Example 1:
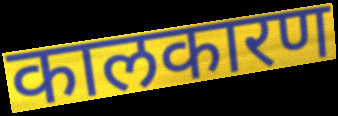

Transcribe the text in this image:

कालकारण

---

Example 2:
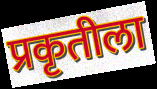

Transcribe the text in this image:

प्रकृतीला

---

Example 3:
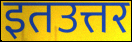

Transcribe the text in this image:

इतउत्तर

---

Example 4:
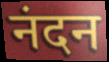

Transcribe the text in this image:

नंदन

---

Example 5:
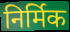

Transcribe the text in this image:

निर्मिक